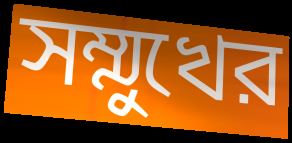
সম্মুখের